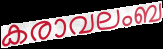
കരാവലംബ